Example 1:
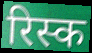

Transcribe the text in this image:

रिस्क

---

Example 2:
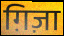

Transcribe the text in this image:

ग़िज़ा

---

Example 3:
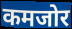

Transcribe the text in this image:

कमजोर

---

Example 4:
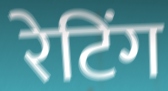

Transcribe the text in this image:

रेटिंग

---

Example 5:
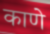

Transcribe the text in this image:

काणे